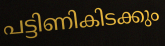
പട്ടിണികിടക്കും